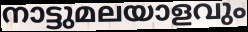
നാട്ടുമലയാളവും